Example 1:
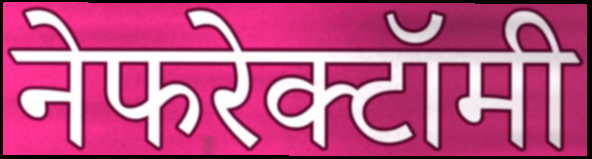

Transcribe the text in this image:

नेफरेक्टॉमी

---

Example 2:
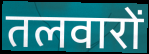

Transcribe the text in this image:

तलवारों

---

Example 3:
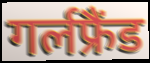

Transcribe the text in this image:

गर्लफ्रैंड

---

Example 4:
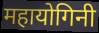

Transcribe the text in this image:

महायोगिनी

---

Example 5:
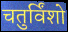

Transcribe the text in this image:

चतुर्विंशो